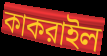
কাকরাইল